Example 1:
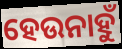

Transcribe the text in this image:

ହେଉନାହୁଁ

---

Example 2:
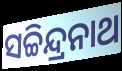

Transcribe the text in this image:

ସଚ୍ଚିନ୍ଦ୍ରନାଥ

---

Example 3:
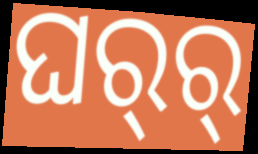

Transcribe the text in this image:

ଘର୍‍ର୍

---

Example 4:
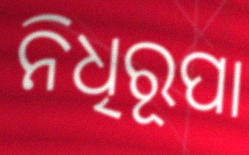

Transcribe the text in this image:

ନିଧିରୂପା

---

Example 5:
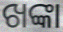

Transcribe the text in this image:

ଖଙ୍କା